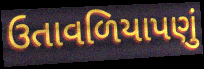
ઉતાવળિયાપણું